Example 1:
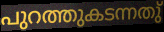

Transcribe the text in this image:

പുറത്തുകടന്നതു്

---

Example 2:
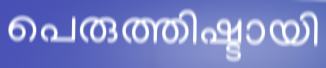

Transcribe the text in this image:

പെരുത്തിഷ്ടായി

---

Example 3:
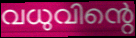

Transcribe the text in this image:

വധുവിന്റെ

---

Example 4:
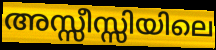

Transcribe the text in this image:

അസ്സീസ്സിയിലെ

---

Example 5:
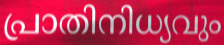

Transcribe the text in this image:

പ്രാതിനിധ്യവും